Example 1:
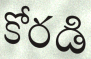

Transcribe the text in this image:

కోరడి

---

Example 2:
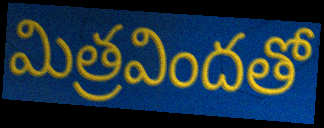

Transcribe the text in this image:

మిత్రవిందతో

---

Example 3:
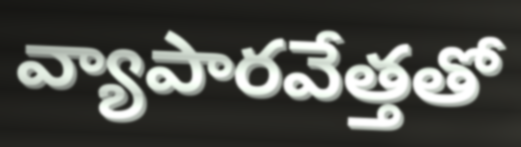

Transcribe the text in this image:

వ్యాపారవేత్తతో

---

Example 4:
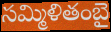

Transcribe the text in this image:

సమ్మిళితంబై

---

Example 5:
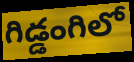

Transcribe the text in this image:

గిడ్డంగిలో